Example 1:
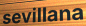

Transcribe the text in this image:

sevillana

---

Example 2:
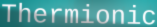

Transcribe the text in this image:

Thermionic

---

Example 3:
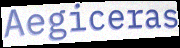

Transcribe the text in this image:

Aegiceras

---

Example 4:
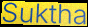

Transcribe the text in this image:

Suktha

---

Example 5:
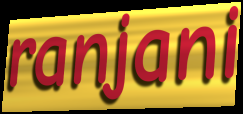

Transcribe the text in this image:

ranjani